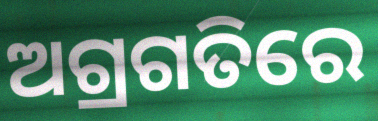
ଅଗ୍ରଗତିରେ